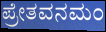
ಪ್ರೇತವನಮಂ